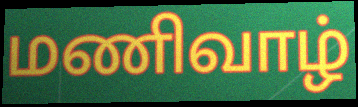
மணிவாழ்